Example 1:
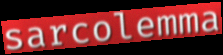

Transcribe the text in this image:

sarcolemma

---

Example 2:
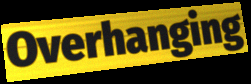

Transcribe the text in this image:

Overhanging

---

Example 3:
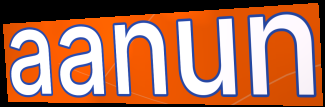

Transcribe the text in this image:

aanun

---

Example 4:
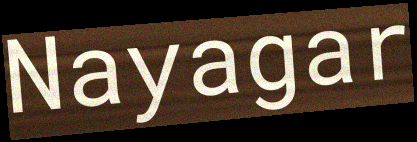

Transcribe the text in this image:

Nayagar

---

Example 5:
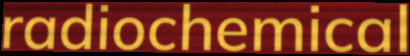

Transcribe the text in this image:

radiochemical